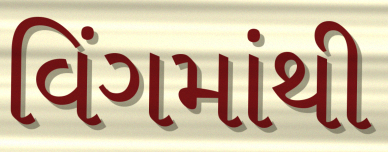
વિંગમાંથી